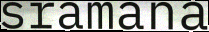
sramana